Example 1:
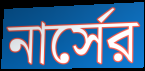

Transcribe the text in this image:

নার্সের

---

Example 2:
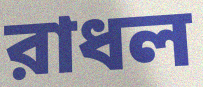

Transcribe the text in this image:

রাধল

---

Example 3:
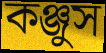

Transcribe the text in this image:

কঞ্জুস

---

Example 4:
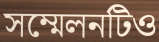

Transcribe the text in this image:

সম্মেলনটিও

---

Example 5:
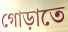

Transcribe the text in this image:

গোড়াতে